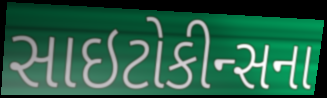
સાઇટોકીન્સના